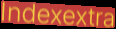
Indexextra